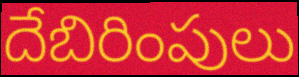
దేబిరింపులు